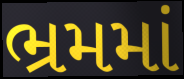
ભ્રમમાં